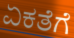
ಏಕತೆಗೆ